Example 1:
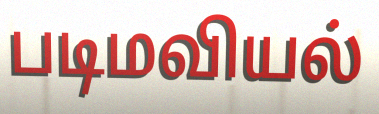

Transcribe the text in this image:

படிமவியல்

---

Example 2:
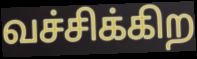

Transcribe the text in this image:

வச்சிக்கிற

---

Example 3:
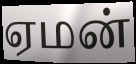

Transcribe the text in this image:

ஏமன்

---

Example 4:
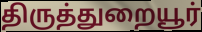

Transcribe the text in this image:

திருத்துறையூர்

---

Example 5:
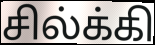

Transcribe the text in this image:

சில்க்கி